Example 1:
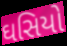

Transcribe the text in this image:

ઘસિયો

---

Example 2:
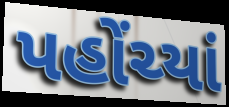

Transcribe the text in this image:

પહોંચ્યાં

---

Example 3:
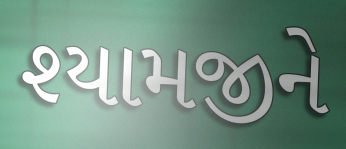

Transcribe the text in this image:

શ્યામજીને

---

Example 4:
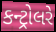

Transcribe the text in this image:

કન્ટ્રોલરે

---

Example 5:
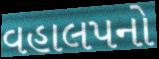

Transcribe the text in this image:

વહાલપનો